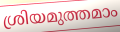
ശ്രിയമുത്തമാം